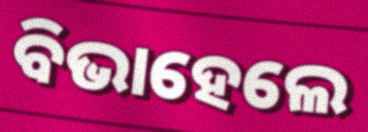
ବିଭାହେଲେ